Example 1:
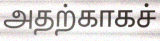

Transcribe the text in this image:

அதற்காகச்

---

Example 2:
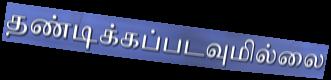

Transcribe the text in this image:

தண்டிக்கப்படவுமில்லை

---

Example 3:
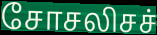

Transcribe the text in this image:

சோசலிசச்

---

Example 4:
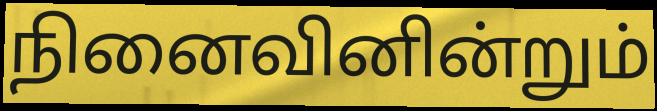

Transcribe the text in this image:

நினைவினின்றும்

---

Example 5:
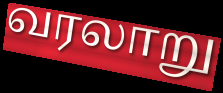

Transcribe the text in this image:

வரலாறு